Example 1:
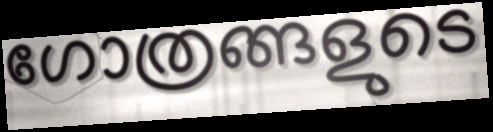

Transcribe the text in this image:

ഗോത്രങ്ങളുടെ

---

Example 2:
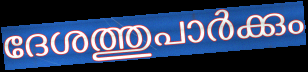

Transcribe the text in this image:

ദേശത്തുപാർക്കും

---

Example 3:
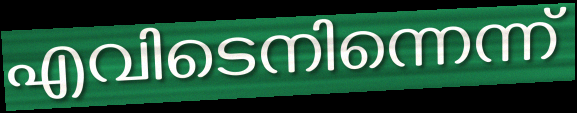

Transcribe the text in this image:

എവിടെനിന്നെന്ന്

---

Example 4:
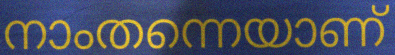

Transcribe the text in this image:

നാംതന്നെയാണ്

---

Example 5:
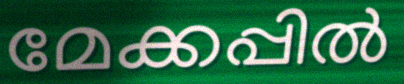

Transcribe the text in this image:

മേക്കപ്പിൽ